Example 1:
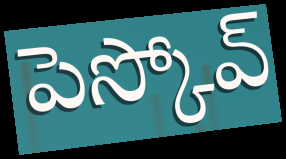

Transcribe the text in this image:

పెస్కోవ్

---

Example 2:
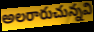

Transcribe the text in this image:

అలరారుచున్నవి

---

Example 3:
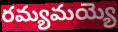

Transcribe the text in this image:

రమ్యమయ్యె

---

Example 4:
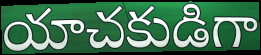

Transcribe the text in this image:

యాచకుడిగా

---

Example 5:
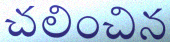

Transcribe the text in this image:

చలించిన